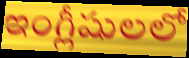
ఇంగ్లీషులలో